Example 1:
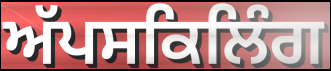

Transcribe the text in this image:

ਅੱਪਸਕਿਲਿੰਗ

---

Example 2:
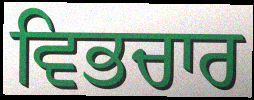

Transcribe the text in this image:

ਵਿਭਚਾਰ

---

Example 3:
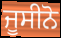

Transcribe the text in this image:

ਜੂਸੀਨੋ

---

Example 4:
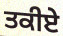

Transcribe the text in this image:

ਤਕੀਏ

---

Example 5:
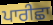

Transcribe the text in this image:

ਪਾਰੀਛਾ